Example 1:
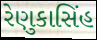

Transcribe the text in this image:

રેણુકાસિંહ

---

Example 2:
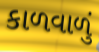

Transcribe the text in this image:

કાળવાળું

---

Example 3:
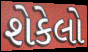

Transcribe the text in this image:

શેકેલો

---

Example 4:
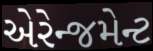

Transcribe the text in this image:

એરેન્જમેન્ટ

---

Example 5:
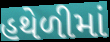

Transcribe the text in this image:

હથેળીમાં